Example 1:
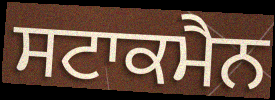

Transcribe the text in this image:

ਸਟਾਕਮੈਨ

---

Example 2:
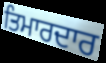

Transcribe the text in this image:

ਤਿਮਾਰਦਾਰ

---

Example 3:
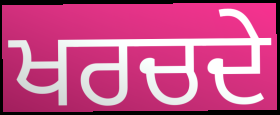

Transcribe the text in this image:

ਖਰਚਦੇ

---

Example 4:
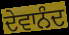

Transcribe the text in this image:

ਦੇਵਾਨੰਦ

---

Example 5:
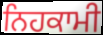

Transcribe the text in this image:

ਨਿਹਕਾਮੀ